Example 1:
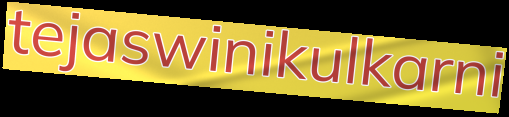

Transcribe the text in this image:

tejaswinikulkarni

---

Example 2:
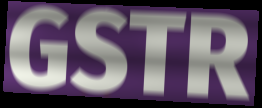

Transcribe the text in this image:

GSTR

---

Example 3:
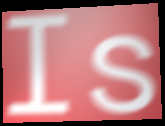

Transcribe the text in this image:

Is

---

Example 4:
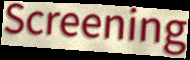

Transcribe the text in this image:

Screening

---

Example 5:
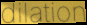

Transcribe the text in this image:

dilation